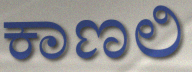
ಕಾಣಲಿ